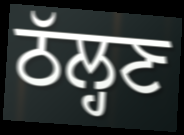
ਠੱਲ੍ਹਣ